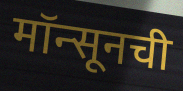
मॉन्सूनची